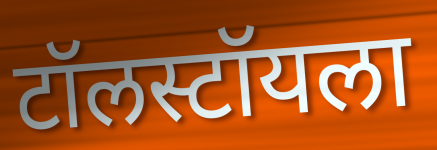
टॉलस्टॉयला